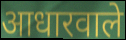
आधारवाले